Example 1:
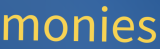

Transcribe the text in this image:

monies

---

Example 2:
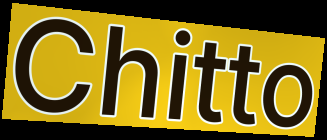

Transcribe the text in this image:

Chitto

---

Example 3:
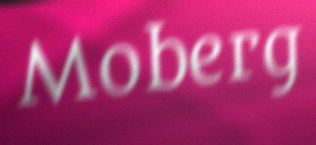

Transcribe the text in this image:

Moberg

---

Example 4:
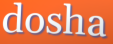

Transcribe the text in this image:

dosha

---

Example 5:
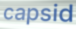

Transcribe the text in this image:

capsid